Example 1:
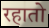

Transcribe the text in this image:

रहातो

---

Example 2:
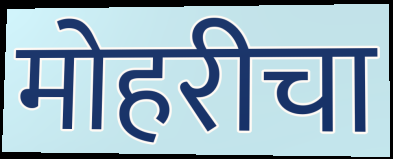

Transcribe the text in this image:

मोहरीचा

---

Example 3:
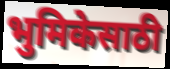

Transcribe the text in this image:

भुमिकेसाठी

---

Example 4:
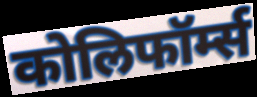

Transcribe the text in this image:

कोलिफॉर्म्स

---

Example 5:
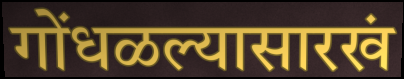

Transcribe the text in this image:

गोंधळल्यासारखं